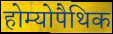
होम्योपैथिक